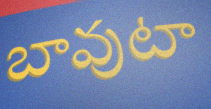
బావుటా